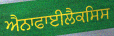
ਐਨਾਫਾਈਲੈਕਸਿਸ